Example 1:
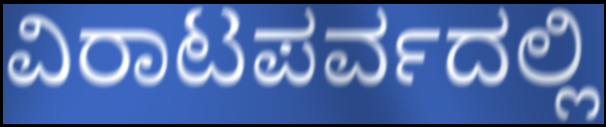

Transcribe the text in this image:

ವಿರಾಟಪರ್ವದಲ್ಲಿ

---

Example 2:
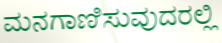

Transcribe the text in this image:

ಮನಗಾಣಿಸುವುದರಲ್ಲಿ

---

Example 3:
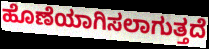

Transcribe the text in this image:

ಹೊಣೆಯಾಗಿಸಲಾಗುತ್ತದೆ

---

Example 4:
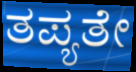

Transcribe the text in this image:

ತಪ್ಯತೇ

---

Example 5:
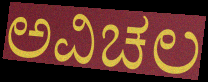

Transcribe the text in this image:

ಅವಿಚಲ